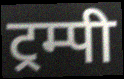
ट्रम्पी